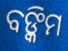
ବଙ୍କିମ